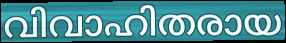
വിവാഹിതരായ